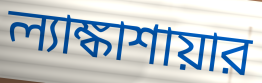
ল্যাঙ্কাশায়ার